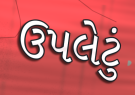
ઉપલેટું